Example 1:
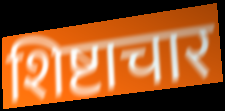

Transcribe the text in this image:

शिष्टाचार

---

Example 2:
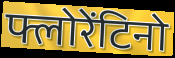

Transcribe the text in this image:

फ्लोरेंटिनो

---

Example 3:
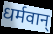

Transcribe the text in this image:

धर्मवान्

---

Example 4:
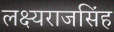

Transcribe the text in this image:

लक्ष्यराजसिंह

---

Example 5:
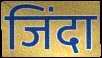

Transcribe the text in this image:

जिंदा